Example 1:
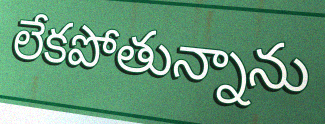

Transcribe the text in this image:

లేకపోతున్నాను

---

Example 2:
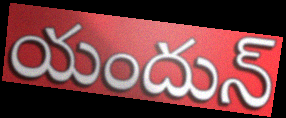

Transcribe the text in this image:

యందున్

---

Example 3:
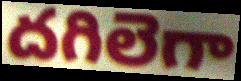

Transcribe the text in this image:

దగిలెగా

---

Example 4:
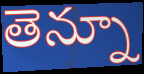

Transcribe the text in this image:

తెన్నూ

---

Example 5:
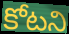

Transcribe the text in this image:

కోటని